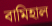
বামিহাল